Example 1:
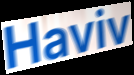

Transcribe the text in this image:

Haviv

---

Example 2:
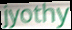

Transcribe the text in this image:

jyothy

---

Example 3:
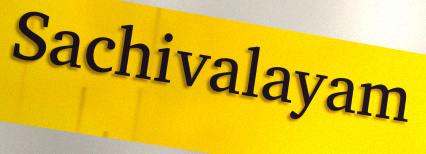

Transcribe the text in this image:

Sachivalayam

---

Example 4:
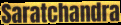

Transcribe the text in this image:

Saratchandra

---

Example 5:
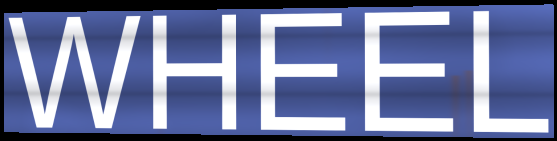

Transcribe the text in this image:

WHEEL